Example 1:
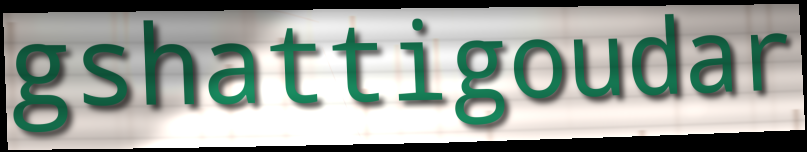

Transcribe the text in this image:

gshattigoudar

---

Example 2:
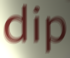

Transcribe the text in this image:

dip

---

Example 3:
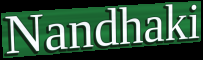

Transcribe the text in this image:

Nandhaki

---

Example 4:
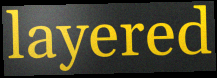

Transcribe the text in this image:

layered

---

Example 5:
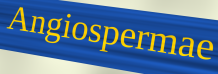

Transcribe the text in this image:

Angiospermae